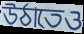
উঠাতেও